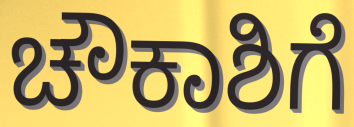
ಚೌಕಾಶಿಗೆ